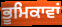
ਭੂਮਿਕਾਵਾਂ